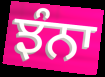
ਝੰਨਾ